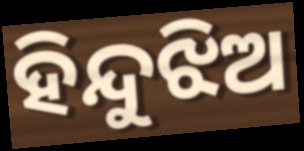
ହିନ୍ଦୁଝିଅ